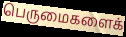
பெருமைகளைக்